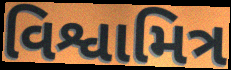
વિશ્વામિત્ર